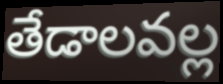
తేడాలవల్ల